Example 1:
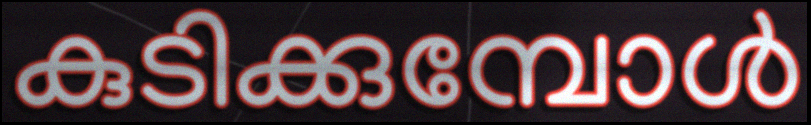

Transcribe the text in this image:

കുടിക്കുമ്പോൾ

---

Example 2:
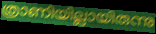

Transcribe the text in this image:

ത്രാണിയില്ലായിരുന്നു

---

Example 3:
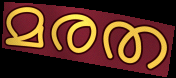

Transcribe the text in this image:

മരത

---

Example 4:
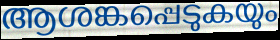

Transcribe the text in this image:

ആശങ്കപ്പെടുകയും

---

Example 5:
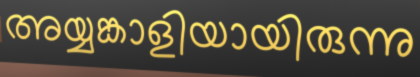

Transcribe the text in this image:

അയ്യങ്കാളിയായിരുന്നു